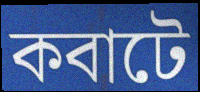
কবাটে